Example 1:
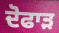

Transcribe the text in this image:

ਦੋਫਾੜ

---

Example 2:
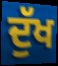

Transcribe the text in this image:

ਦੁੱਖ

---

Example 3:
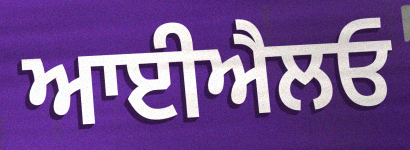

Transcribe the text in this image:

ਆਈਐਲਓ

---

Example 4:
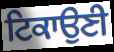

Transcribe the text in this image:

ਟਿਕਾਉਣੀ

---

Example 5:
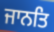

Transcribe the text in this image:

ਜਾਨਤਿ